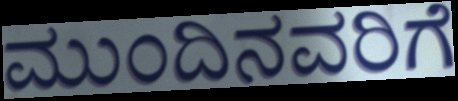
ಮುಂದಿನವರಿಗೆ